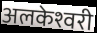
अलकेश्वरी